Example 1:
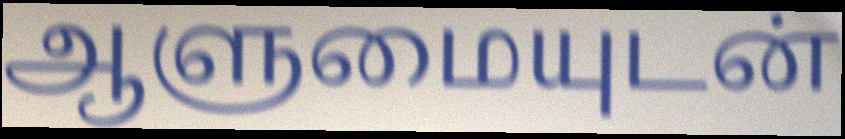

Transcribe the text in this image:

ஆளுமையுடன்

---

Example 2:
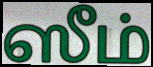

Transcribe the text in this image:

ஸீம்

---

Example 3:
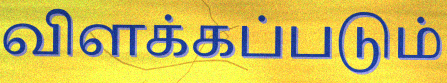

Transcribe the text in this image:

விளக்கப்படும்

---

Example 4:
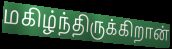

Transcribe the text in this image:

மகிழ்ந்திருக்கிறான்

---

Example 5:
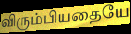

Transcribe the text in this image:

விரும்பியதையே